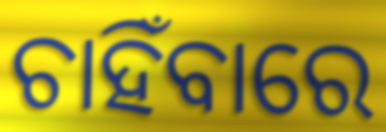
ଚାହିଁବାରେ